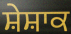
ਸ਼ੇਸ਼ਾਕ